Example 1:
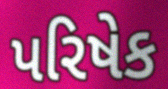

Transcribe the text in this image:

પરિષેક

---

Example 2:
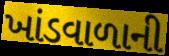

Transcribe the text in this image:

ખાંડવાળાની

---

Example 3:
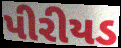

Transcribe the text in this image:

પીરીયડ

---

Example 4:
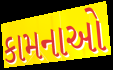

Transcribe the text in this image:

કામનાઓ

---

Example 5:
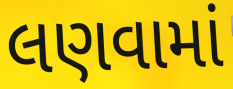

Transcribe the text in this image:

લણવામાં